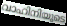
വാഹിനിയുടെ